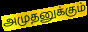
அமுதனுக்கும்